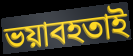
ভয়াবহতাই